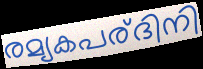
രമ്യകപര്ദിനി